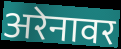
अरेनावर